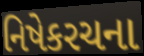
નિષેકરચના